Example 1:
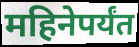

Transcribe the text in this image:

महिनेपर्यंत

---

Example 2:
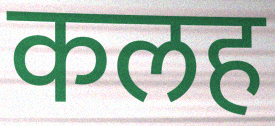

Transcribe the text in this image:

कलह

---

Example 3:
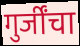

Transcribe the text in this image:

गुर्जींचा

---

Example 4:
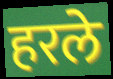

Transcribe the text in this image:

हरले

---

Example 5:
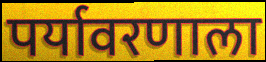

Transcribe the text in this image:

पर्यावरणाला